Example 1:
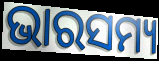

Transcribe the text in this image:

ଭାରସମ୍ୟ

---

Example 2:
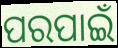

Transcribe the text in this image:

ପରପାଇଁ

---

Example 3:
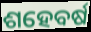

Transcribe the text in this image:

ଶହେବର୍ଷ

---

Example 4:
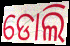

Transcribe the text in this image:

ଡୋଲି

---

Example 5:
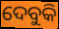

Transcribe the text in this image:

ଦେବୁକି